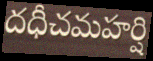
దధీచమహర్షి